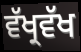
ਵੱਖ੍ਰਵੱਖ